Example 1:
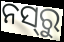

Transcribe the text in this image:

ନସ୍‍ରୁ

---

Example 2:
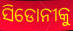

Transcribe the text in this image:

ସିଡୋନୀକୁ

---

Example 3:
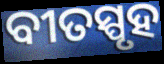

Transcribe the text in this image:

ବୀତସ୍ପୃହ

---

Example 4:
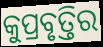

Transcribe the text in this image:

କୁପ୍ରବୃତ୍ତିର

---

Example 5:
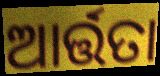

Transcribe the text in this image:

ଆର୍ତ୍ତତା